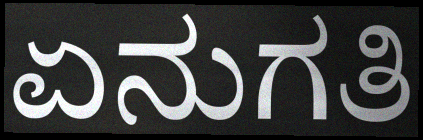
ಏನುಗತಿ